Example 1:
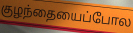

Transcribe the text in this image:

குழந்தையைப்போல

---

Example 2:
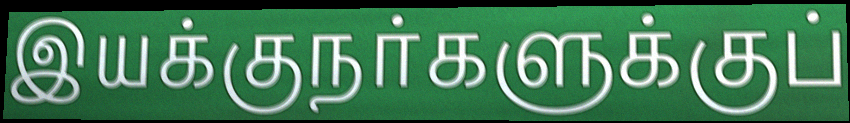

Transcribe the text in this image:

இயக்குநர்களுக்குப்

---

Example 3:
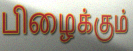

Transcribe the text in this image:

பிழைக்கும்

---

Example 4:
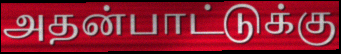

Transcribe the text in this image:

அதன்பாட்டுக்கு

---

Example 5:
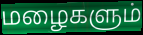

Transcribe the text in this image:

மழைகளும்